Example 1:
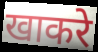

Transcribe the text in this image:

खाकरे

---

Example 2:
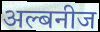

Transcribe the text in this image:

अल्‍बनीज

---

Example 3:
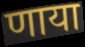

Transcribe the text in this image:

णाया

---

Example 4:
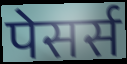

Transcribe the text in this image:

पेसर्स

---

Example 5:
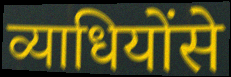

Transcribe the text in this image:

व्याधियोंसे